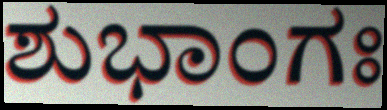
ಶುಭಾಂಗಃ